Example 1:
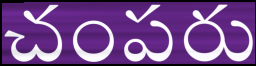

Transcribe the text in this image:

చంపరు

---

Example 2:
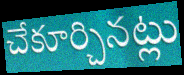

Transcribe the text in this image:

చేకూర్చినట్లు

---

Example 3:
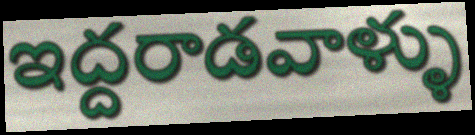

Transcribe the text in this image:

ఇద్దరాడవాళ్ళు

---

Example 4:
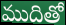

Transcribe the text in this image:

ముదితో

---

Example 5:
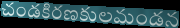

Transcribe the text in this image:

చండకిరణకులమండన